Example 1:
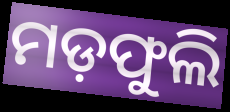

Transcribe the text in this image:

ମଡ଼ଫୁଲି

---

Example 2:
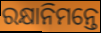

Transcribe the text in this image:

ରକ୍ଷାନିମନ୍ତେ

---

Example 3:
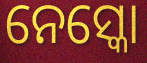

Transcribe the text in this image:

ନେସ୍କୋ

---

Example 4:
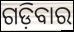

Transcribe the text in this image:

ଗଡ଼ିବାର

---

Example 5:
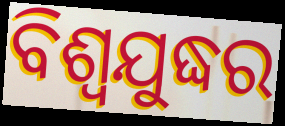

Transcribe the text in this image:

ବିଶ୍ବଯୁଦ୍ଧର